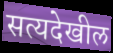
सत्यदेखील